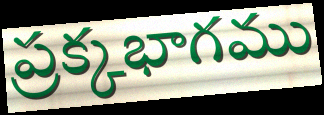
ప్రక్కభాగము